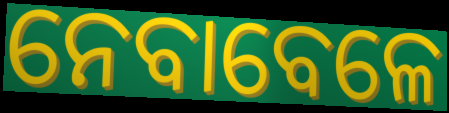
ନେବାବେଳେ